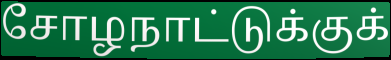
சோழநாட்டுக்குக்